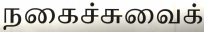
நகைச்சுவைக்